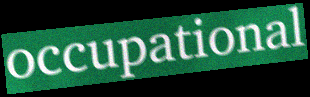
occupational